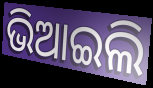
ଭିଆଇଲି